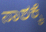
ನಾಶಕ್ಕೆ